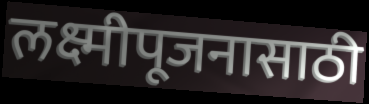
लक्ष्मीपूजनासाठी